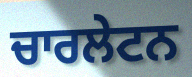
ਚਾਰਲੇਟਨ